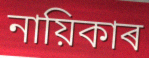
নায়িকাৰ